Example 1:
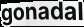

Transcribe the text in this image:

gonadal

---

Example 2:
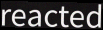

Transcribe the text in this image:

reacted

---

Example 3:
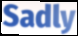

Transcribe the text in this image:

Sadly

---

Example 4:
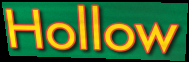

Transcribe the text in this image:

Hollow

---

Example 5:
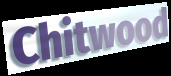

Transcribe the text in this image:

Chitwood